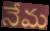
నేమ